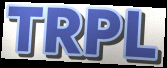
TRPL